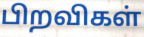
பிறவிகள்